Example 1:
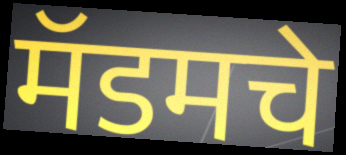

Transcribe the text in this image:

मॅडमचे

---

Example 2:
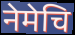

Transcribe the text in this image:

नेमेचि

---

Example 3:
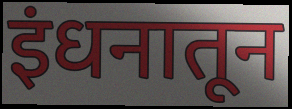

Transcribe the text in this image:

इंधनातून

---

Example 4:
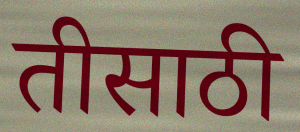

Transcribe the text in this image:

तीसाठी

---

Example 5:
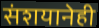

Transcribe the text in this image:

संशयानेही